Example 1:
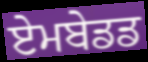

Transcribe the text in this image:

ਏਮਬੇਡਡ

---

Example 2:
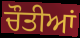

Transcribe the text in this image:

ਚੌਤੀਆਂ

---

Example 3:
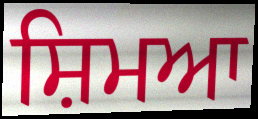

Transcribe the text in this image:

ਸ਼ਿਮਆ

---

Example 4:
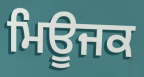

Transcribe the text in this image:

ਮਿਊਜਕ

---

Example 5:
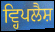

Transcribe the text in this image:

ਵ੍ਹਿਪਲੈਸ਼